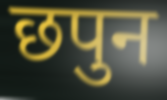
छपुन